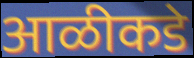
आळीकडे